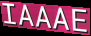
IAAAE